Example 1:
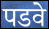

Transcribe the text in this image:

पडवे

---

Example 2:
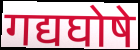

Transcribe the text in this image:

गद्यघोषे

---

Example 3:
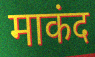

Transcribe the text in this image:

माकंद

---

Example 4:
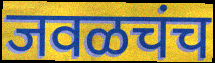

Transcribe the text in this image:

जवळचंच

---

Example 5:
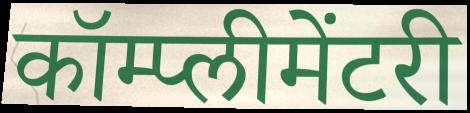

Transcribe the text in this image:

कॉम्प्लीमेंटरी